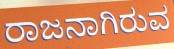
ರಾಜನಾಗಿರುವ